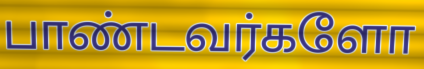
பாண்டவர்களோ